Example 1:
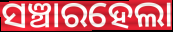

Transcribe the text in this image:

ସଞ୍ଚାରହେଲା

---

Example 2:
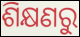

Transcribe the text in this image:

ଶିକ୍ଷଣରୁ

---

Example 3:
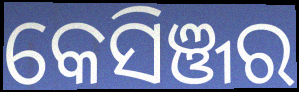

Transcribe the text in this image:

କେସିଞ୍ଜର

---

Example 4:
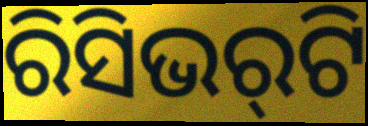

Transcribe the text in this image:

ରିସିଭର୍‌ଟି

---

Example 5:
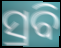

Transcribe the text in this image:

ସ୍ରବି